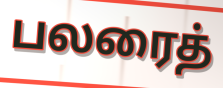
பலரைத்